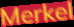
Merkel